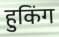
हुकिंग